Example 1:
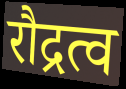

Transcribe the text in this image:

रौद्रत्व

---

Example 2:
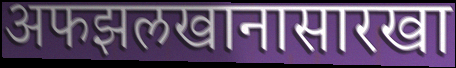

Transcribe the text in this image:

अफझलखानासारखा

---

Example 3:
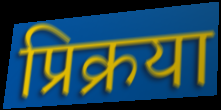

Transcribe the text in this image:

प्रिक्रया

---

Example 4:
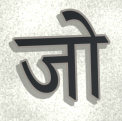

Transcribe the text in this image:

जो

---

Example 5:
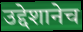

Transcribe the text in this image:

उद्देशानेच